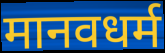
मानवधर्म